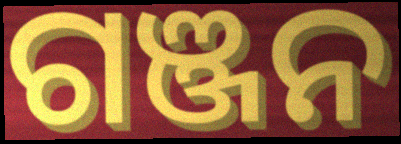
ଗଞ୍ଜନ